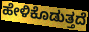
ಹೇಳಿಕೊಡುತ್ತದೆ